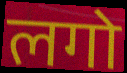
लगो